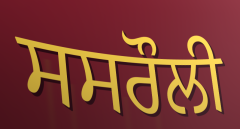
ਸਸਰੌਲੀ